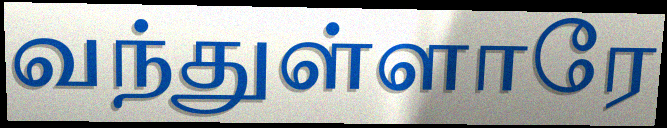
வந்துள்ளாரே